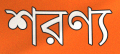
শরণ্য